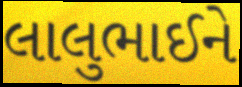
લાલુભાઈને